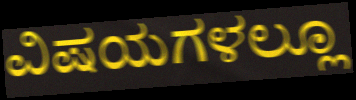
ವಿಷಯಗಳಲ್ಲೂ